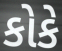
કોકે